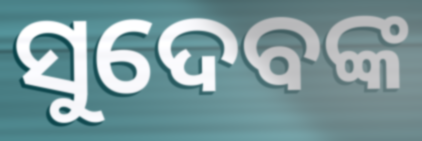
ସୁଦେବଙ୍କ